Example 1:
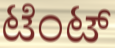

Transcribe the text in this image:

ಟೆಂಟ್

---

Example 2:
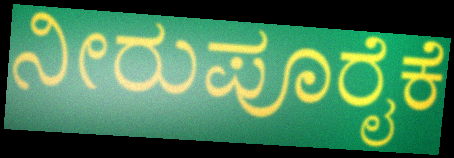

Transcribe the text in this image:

ನೀರುಪೂರೈಕೆ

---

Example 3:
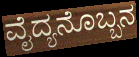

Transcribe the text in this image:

ವೈದ್ಯನೊಬ್ಬನ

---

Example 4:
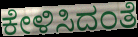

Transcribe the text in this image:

ಕೇಳಿಸಿದಂತೆ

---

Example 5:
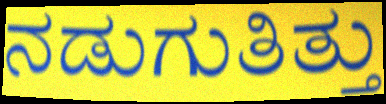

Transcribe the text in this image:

ನಡುಗುತಿತ್ತು